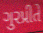
ગુરપ્રીતે